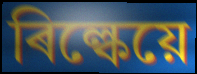
ৰিল্কেয়ে